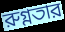
রুগ্নতার